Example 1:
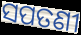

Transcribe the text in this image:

ସପତଣୀ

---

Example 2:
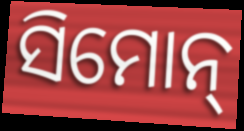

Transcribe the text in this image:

ସିମୋନ୍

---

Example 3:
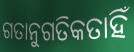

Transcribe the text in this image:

ଗତାନୁଗତିକତାହିଁ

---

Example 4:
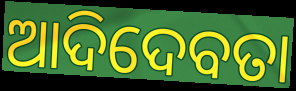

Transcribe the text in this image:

ଆଦିଦେବତା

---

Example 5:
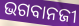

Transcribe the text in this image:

ଭଗବାନଜୀ